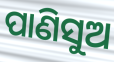
ପାଣିସୁଅ